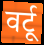
वर्टू